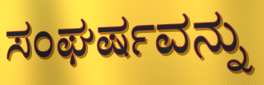
ಸಂಘರ್ಷವನ್ನು